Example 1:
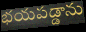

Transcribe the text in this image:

భయపడ్డాను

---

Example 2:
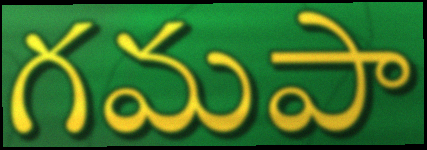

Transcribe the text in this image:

గమపా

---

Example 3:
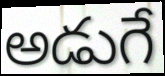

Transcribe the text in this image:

అడుగే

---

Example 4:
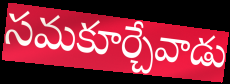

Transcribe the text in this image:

సమకూర్చేవాడు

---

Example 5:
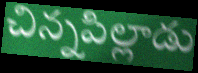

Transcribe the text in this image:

చిన్నపిల్లాడు